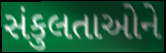
સંકુલતાઓને